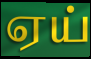
ஏய்